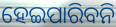
ହେଇପାରିବନି